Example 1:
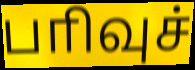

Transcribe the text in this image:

பரிவுச்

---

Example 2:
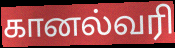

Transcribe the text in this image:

கானல்வரி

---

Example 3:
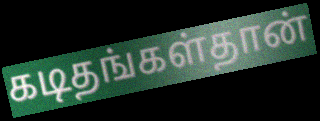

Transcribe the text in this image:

கடிதங்கள்தான்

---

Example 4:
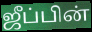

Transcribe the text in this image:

ஜீப்பின்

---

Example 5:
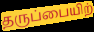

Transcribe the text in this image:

தருப்பையிற்